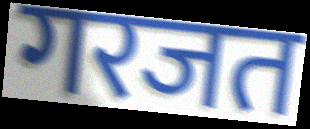
गरजत